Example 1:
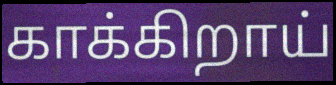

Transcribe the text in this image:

காக்கிறாய்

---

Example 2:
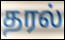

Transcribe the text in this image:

தரல்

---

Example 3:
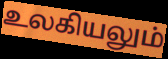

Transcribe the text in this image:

உலகியலும்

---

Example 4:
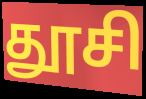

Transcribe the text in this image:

தூசி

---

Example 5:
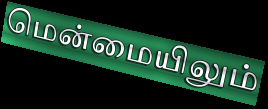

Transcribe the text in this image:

மென்மையிலும்